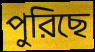
পুরিছে